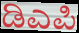
ಡಿಎಪಿ